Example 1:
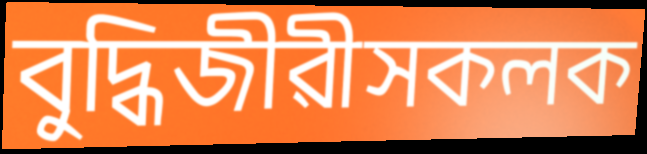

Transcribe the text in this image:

বুদ্ধিজীৱীসকলক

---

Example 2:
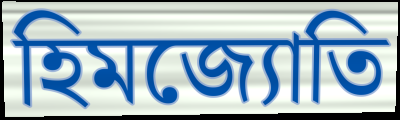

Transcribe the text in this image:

হিমজ্যোতি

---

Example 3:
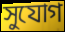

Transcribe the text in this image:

সুযোগ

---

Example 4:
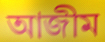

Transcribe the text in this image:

আজীম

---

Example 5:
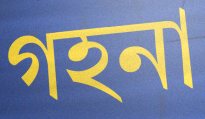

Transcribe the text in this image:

গহনা